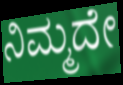
ನಿಮ್ಮದೇ